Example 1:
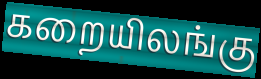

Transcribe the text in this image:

கறையிலங்கு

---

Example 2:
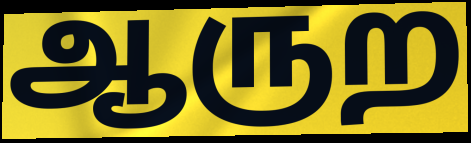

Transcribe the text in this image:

ஆருற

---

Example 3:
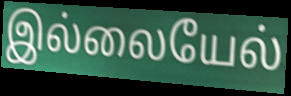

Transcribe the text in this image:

இல்லையேல்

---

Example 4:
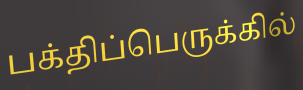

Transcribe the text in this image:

பக்திப்பெருக்கில்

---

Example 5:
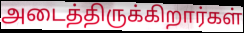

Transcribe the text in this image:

அடைத்திருக்கிறார்கள்